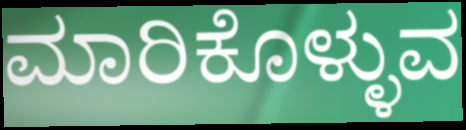
ಮಾರಿಕೊಳ್ಳುವ